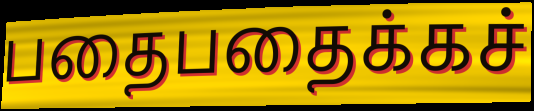
பதைபதைக்கச்